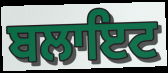
ਬਲਾਇਟ